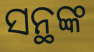
ସନ୍ଥଙ୍କ